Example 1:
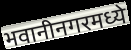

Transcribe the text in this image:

भवानीनगरमध्ये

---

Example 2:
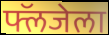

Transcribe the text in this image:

फ्लॅजेला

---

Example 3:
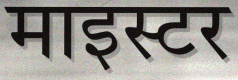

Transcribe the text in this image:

माइस्टर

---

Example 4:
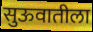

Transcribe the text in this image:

सुऊवातीला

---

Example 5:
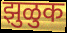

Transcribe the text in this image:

झुळुक